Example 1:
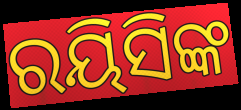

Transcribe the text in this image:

ରୟିସିଙ୍କ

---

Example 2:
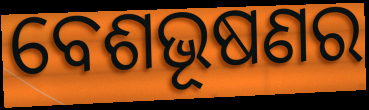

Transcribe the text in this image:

ବେଶଭୂଷଣର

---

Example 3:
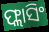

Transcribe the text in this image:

ଫ୍ଲାସିଂ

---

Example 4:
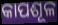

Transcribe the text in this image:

କାପଶୂଳ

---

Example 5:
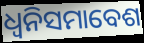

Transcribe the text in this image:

ଧ୍ୱନିସମାବେଶ